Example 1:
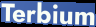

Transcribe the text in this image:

Terbium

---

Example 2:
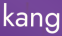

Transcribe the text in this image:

kang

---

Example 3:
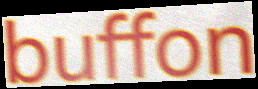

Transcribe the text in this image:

buffon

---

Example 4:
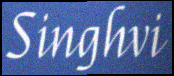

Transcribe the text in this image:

Singhvi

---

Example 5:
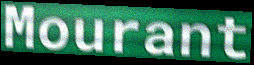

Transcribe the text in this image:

Mourant